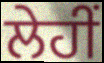
ਲੇਹੀਂ